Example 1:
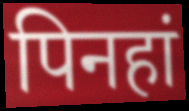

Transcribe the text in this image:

पिनहां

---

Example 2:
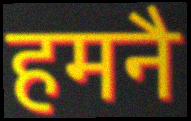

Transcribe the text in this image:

हमनै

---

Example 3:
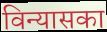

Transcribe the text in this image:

विन्यासका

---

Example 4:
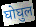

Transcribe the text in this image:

घोघुल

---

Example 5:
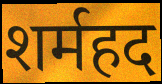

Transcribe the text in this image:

शर्महद